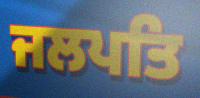
ਜਲਪਤਿ